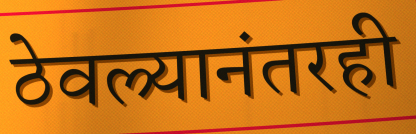
ठेवल्यानंतरही